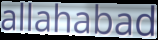
allahabad